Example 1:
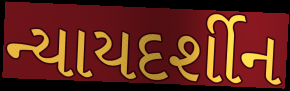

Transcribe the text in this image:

ન્યાયદર્શીન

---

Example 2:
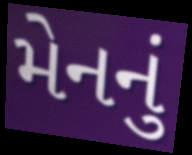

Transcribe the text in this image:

મેનનું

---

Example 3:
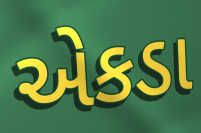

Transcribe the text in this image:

એકડા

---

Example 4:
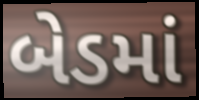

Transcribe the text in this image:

બેડમાં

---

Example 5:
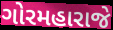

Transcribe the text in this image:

ગોરમહારાજે